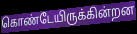
கொண்டேயிருக்கின்றன